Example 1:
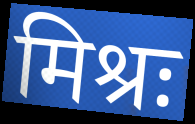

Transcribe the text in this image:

मिश्रः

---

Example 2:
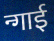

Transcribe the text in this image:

न्गाई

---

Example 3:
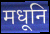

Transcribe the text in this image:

मधूनि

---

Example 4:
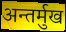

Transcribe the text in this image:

अन्तर्मुख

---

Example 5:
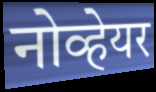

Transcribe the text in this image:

नोव्हेयर